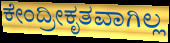
ಕೇಂದ್ರೀಕೃತವಾಗಿಲ್ಲ